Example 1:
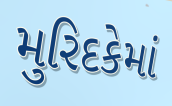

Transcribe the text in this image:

મુરિદકેમાં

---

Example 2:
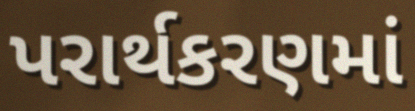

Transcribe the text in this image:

પરાર્થકરણમાં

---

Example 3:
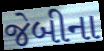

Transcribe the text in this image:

જેબીના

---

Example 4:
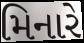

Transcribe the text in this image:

મિનારે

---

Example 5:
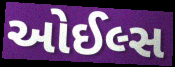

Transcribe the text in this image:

ઓઈલ્સ